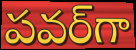
పవర్‌గా